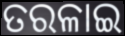
ତରଳାଇ